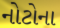
નોટોના